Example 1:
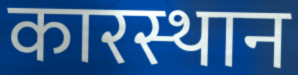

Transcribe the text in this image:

कारस्थान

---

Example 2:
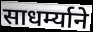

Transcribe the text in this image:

साधर्म्याने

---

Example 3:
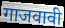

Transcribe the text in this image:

गाजवावी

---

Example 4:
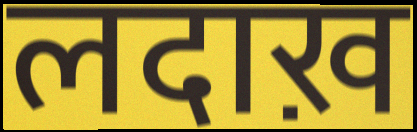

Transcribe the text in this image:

लदाख़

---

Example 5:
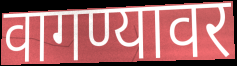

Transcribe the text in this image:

वागण्यावर